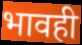
भावही